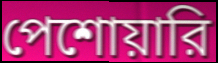
পেশোয়ারি